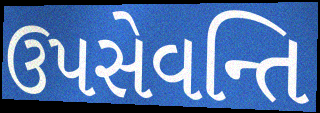
ઉપસેવન્તિ